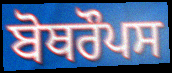
ਬੋਥਰੌਪਸ